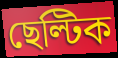
ছেল্টিক